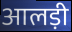
आलड़ी